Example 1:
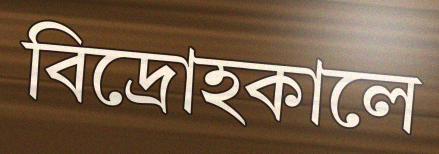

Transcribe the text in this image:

বিদ্রোহকালে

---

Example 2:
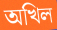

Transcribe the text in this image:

অখিল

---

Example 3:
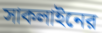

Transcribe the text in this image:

সাকলাইনের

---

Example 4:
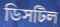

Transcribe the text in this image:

ডিসটিল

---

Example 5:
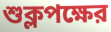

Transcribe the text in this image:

শুক্লপক্ষের